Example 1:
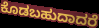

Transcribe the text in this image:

ಕೊಡಬಹುದಾದರೆ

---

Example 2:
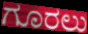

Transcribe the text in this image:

ಗೂರಲು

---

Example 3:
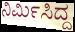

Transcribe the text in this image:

ನಿರ್ಮಿಸಿದ್ದ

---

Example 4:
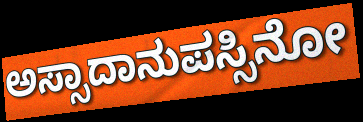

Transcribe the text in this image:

ಅಸ್ಸಾದಾನುಪಸ್ಸಿನೋ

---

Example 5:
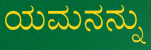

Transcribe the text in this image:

ಯಮನನ್ನು